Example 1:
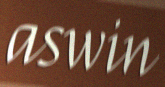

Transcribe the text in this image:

aswin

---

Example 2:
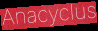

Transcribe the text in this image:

Anacyclus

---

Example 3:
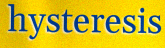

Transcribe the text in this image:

hysteresis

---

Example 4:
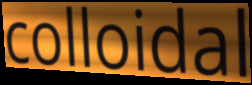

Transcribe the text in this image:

colloidal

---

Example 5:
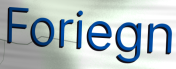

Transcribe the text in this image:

Foriegn